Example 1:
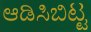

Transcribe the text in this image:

ಆಡಿಸಿಬಿಟ್ಟ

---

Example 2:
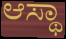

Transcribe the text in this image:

ಆಸ್ಥಾ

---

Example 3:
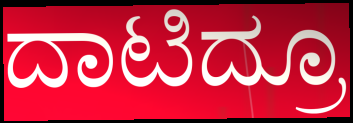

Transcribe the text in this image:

ದಾಟಿದ್ರೂ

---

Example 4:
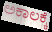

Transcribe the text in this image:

ಅಕಾಲಕ್ಕೆ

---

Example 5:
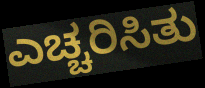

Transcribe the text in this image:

ಎಚ್ಚರಿಸಿತು